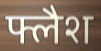
फ्लैश